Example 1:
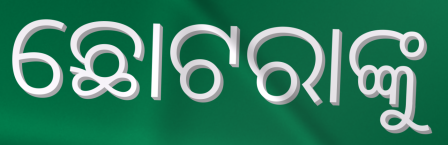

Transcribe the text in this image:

ଛୋଟରାଙ୍କୁ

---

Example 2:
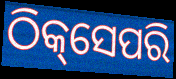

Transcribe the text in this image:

ଠିକ୍‌ସେପରି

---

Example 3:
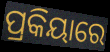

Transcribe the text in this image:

ପ୍ରକିୟାରେ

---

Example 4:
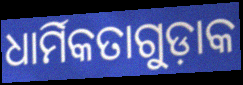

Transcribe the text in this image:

ଧାର୍ମିକତାଗୁଡ଼ାକ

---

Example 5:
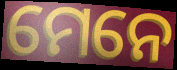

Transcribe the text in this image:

ମେନେ